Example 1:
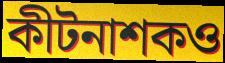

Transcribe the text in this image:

কীটনাশকও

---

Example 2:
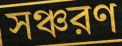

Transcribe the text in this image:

সঞ্চরণ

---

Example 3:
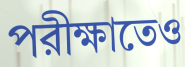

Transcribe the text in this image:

পরীক্ষাতেও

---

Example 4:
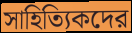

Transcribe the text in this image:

সাহিত্যিকদের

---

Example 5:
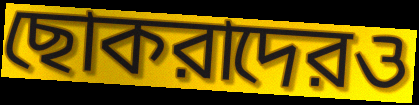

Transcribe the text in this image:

ছোকরাদেরও